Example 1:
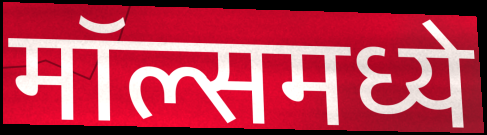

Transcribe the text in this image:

मॉल्समध्ये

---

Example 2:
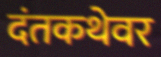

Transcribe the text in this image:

दंतकथेवर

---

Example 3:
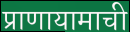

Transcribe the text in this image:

प्राणायामाची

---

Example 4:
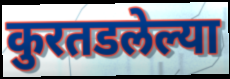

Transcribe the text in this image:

कुरतडलेल्या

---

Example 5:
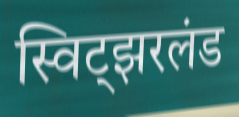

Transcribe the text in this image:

स्विट्झरलंड